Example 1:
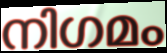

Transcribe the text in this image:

നിഗമം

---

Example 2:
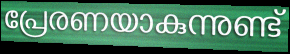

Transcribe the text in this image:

പ്രേരണയാകുന്നുണ്ട്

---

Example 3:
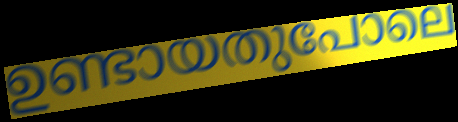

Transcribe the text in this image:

ഉണ്ടായതുപോലെ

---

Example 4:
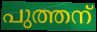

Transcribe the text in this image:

പുത്തന്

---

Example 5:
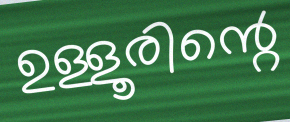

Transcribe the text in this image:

ഉള്ളൂരിന്റെ